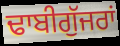
ਢਾਬੀਗੁੱਜਰਾਂ